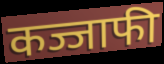
कज्जाफी